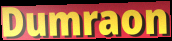
Dumraon